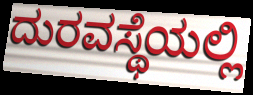
ದುರವಸ್ಥೆಯಲ್ಲಿ